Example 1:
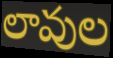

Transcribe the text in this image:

లావుల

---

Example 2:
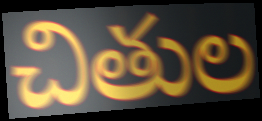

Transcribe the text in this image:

చితుల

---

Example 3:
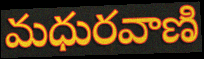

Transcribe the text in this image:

మధురవాణి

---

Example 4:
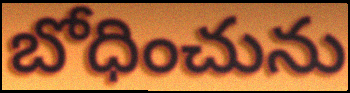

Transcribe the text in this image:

బోధించును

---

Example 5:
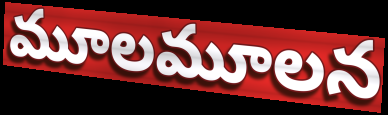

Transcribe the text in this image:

మూలమూలన